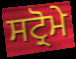
ਸਟ੍ਰੋਮੇ